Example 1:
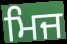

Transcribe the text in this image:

ਮਿਜ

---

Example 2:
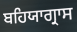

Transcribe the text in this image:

ਬਹਿਯਾਗ੍ਰਾਸ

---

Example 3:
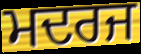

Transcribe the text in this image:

ਮਦਰਜ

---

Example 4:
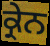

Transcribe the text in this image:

ਕ੍ਰੇਨ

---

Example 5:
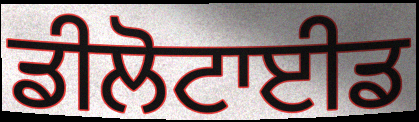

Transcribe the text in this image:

ਡੀਲੋਟਾਈਡ